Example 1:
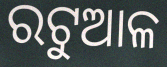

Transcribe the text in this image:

ରଟୁଆଳ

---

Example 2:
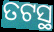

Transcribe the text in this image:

ତଟସ୍ଥ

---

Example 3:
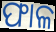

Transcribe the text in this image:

ଫାଳ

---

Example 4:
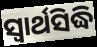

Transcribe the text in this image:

ସ୍ୱାର୍ଥସିଦ୍ଧି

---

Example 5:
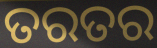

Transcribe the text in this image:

ତରତର